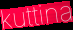
kuttina